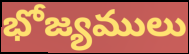
భోజ్యములు